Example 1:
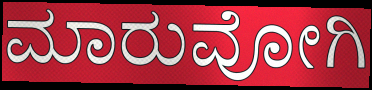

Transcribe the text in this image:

ಮಾರುವೋಗಿ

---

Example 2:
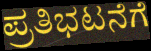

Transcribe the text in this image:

ಪ್ರತಿಭಟನೆಗೆ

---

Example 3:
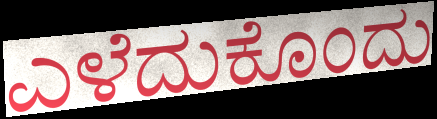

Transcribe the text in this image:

ಎಳೆದುಕೊಂದು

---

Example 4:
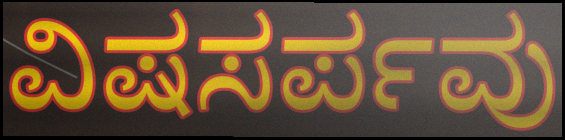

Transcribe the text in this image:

ವಿಷಸರ್ಪವು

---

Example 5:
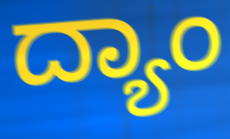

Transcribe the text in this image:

ದ್ಯಾಂ